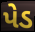
પેડ